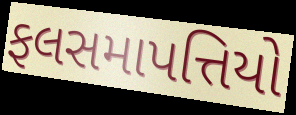
ફલસમાપત્તિયો